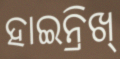
ହାଇନ୍ରିଖ୍